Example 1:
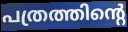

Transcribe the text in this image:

പത്രത്തിന്റെ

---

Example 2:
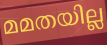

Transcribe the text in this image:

മമതയില്ല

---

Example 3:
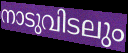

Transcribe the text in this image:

നാടുവിടലും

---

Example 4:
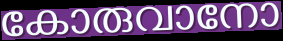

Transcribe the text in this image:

കോരുവാനോ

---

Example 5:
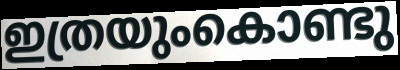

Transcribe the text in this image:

ഇത്രയുംകൊണ്ടു